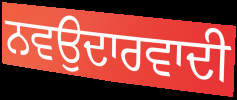
ਨਵਉਦਾਰਵਾਦੀ